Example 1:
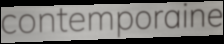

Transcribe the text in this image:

contemporaine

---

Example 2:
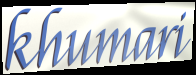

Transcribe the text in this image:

khumari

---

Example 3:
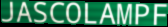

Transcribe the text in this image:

JASCOLAMPF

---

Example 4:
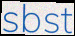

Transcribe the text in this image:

sbst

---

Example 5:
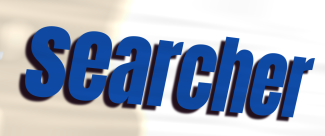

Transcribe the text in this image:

searcher